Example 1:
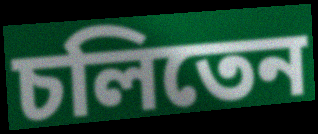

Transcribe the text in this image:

চলিতেন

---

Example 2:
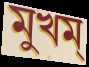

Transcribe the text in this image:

মুখম্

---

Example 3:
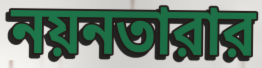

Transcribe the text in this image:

নয়নতারার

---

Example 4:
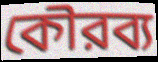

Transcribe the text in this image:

কৌরব্য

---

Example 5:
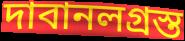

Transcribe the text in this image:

দাবানলগ্রস্ত